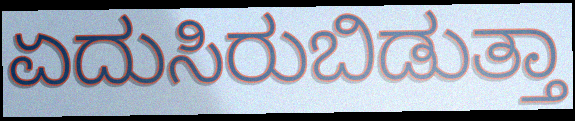
ಏದುಸಿರುಬಿಡುತ್ತಾ